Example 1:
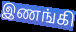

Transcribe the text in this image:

இணங்கி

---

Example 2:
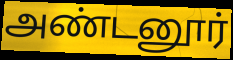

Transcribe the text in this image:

அண்டனூர்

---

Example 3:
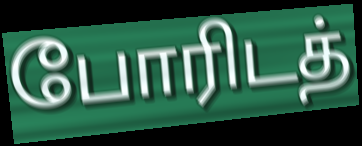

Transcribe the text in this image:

போரிடத்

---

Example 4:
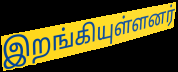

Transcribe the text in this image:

இறங்கியுள்ளனர்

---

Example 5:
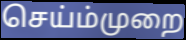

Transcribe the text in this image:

செய்ம்முறை